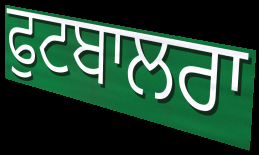
ਫੁਟਬਾਲਰਾ